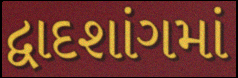
દ્વાદશાંગમાં